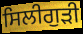
ਸਿਲੀਗੁੜੀ